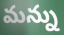
మన్ను